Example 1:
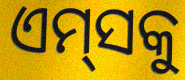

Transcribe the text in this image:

ଏମ୍‌ସକୁ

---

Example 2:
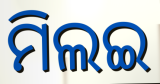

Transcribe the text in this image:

ମିଲଇ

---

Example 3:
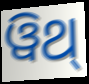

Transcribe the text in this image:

ୱିଥ୍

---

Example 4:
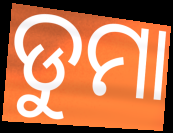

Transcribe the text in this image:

ଡୁମା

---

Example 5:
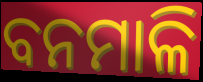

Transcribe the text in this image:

ବନମାଳି